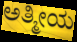
ಅತ್ಮೀಯ